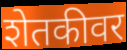
शेतकीवर